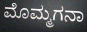
ಮೊಮ್ಮಗನಾ